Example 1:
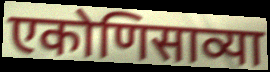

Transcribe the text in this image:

एकोणिसाव्या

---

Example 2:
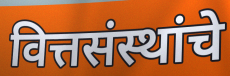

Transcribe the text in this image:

वित्तसंस्थांचे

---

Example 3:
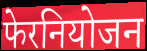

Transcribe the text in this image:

फेरनियोजन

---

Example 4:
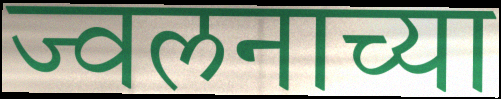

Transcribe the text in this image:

ज्वलनाच्या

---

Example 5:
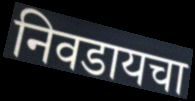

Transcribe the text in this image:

निवडायचा